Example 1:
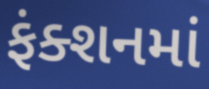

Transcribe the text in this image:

ફંક્શનમાં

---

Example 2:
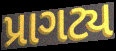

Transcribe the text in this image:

પ્રાગટ્ય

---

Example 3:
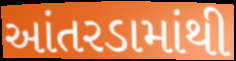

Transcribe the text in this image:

આંતરડામાંથી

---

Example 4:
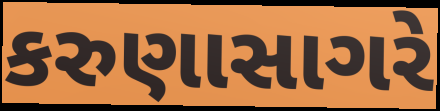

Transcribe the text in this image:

કરુણાસાગરે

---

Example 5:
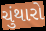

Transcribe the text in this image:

ચુંથારો